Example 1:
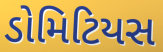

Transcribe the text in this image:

ડોમિટિયસ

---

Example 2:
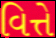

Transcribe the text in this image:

વિત્તે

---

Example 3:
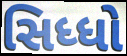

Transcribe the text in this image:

સિધ્ધો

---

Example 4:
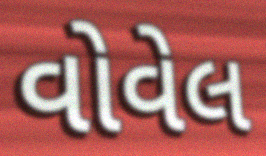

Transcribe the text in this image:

વોવેલ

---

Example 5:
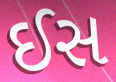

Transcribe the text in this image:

ઈસ